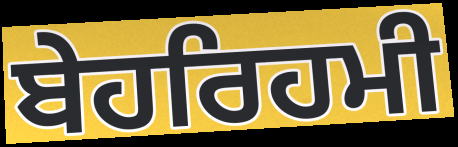
ਬੇਹਰਿਹਮੀ